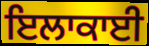
ਇਲਾਕਾਈ